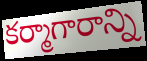
కర్మాగారాన్ని